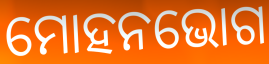
ମୋହନଭୋଗ